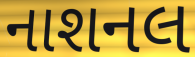
નાશનલ